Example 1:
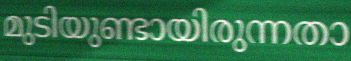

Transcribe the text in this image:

മുടിയുണ്ടായിരുന്നതാ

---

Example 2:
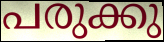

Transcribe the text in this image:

പരുക്കു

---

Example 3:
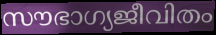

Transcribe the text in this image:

സൗഭാഗ്യജീവിതം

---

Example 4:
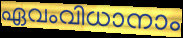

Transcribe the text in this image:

ഏവംവിധാനാം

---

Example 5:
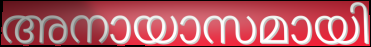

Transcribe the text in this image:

അനായാസമായി